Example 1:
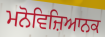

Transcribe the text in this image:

ਮਨੋਵਿਜ਼ਿਆਨਕ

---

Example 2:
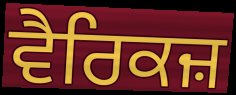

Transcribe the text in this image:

ਵੈਰਿਕਜ਼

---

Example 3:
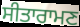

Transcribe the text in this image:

ਸੀਤਾਰਾਮਣ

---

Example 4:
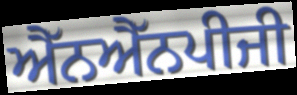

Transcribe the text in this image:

ਐੱਨਐੱਨਪੀਜੀ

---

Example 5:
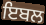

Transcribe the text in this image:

ਇਬਲ